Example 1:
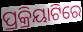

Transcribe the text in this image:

ପ୍ରକ୍ରିୟାଟିରେ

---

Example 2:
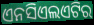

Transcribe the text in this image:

ଏନସିଏଲଏଟିର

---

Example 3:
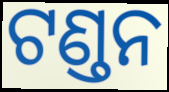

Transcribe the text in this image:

ଟଣ୍ଡନ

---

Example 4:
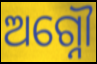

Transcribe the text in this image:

ଅଗ୍ନୌ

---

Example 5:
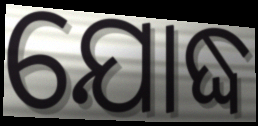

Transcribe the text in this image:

ଯୋଦ୍ଧ